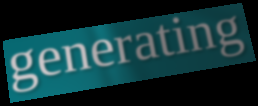
generating